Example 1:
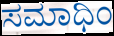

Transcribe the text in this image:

ಸಮಾಧಿಂ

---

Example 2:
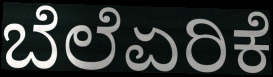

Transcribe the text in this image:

ಬೆಲೆಏರಿಕೆ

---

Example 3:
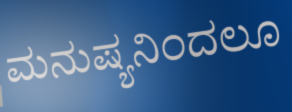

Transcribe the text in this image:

ಮನುಷ್ಯನಿಂದಲೂ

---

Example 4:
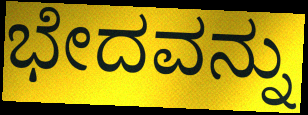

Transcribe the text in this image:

ಭೇದವನ್ನು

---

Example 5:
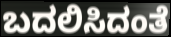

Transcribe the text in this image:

ಬದಲಿಸಿದಂತೆ